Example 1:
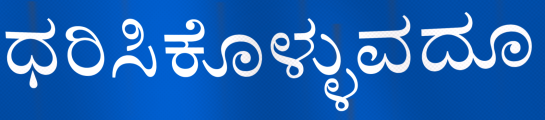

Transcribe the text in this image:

ಧರಿಸಿಕೊಳ್ಳುವದೂ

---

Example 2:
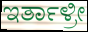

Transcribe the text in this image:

ಇರ್ತಾಳ್ರೀ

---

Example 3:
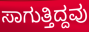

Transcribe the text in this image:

ಸಾಗುತ್ತಿದ್ದವು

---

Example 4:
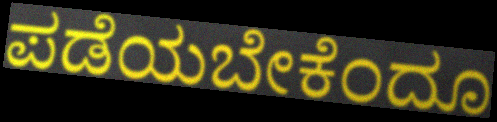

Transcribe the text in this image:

ಪಡೆಯಬೇಕೆಂದೂ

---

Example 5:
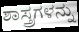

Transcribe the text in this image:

ಶಾಸ್ತ್ರಗಳನ್ನು